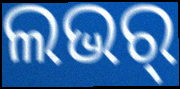
ଲଭର୍